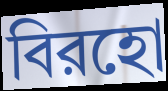
বিরহো